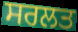
ਸਰਲਤ